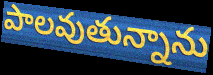
పాలవుతున్నాను